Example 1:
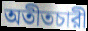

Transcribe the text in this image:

অতীতচারী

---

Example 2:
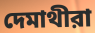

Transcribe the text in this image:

দেমাথীরা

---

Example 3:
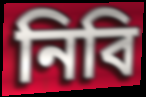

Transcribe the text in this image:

নিবি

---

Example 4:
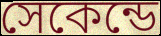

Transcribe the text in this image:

সেকেন্ডে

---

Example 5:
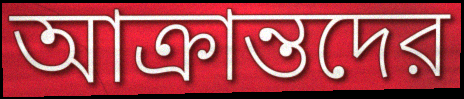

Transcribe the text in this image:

আক্রান্তদের